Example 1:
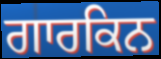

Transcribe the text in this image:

ਗਾਰਕਿਨ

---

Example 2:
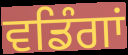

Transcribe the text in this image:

ਵਡਿੰਗਾਂ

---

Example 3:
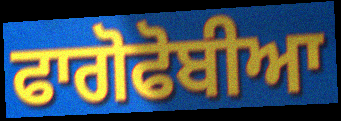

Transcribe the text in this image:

ਫਾਗੋਫੋਬੀਆ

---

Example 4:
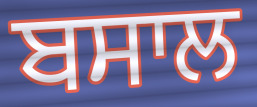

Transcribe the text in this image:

ਬਸਾਲ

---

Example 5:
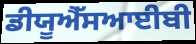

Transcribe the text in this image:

ਡੀਯੂਐੱਸਆਈਬੀ